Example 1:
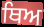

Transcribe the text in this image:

ਥਿਅ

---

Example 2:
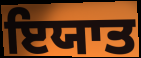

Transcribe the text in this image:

ਇਯਾਤ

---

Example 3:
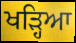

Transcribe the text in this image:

ਖੜ੍ਹਿਆ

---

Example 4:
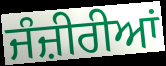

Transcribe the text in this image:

ਜੰਜ਼ੀਰੀਆਂ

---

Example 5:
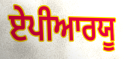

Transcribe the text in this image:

ਏਪੀਆਰਯੂ